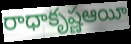
రాధాకృష్ణఆయీ